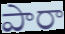
పారా